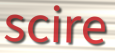
scire